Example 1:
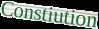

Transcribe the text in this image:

Constiution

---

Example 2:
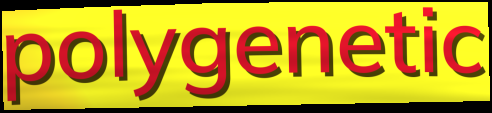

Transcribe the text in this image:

polygenetic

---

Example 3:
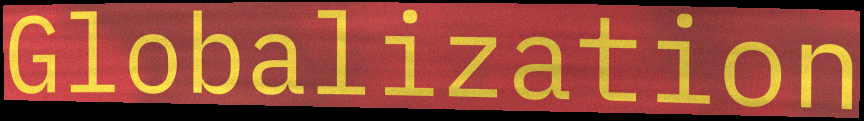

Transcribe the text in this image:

Globalization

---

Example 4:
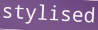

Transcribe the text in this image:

stylised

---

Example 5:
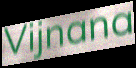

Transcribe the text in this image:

Vijnana